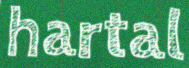
hartal